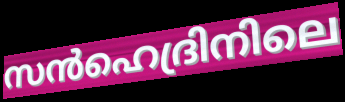
സൻഹെദ്രിനിലെ